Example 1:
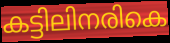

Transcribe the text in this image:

കട്ടിലിനരികെ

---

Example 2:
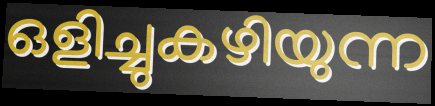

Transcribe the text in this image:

ഒളിച്ചുകഴിയുന്ന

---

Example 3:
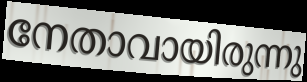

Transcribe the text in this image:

നേതാവായിരുന്നു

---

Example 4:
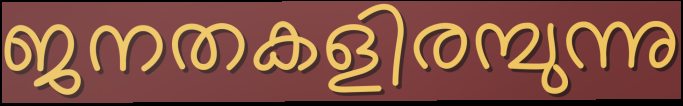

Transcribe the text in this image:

ജനതകളിരമ്പുന്നു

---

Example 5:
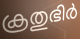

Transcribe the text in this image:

ക്രതുഭിർ